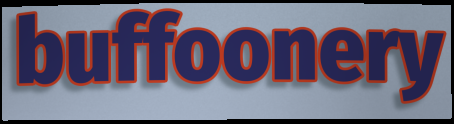
buffoonery